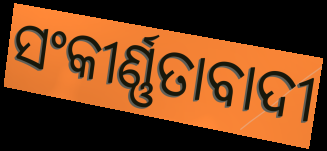
ସଂକୀର୍ଣ୍ଣତାବାଦୀ